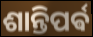
ଶାନ୍ତିପର୍ଵ